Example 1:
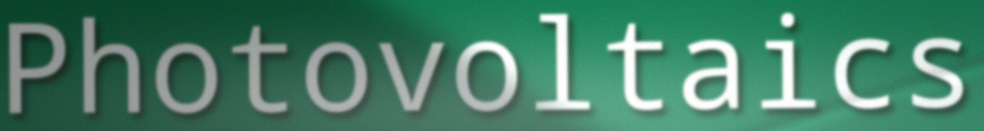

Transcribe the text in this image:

Photovoltaics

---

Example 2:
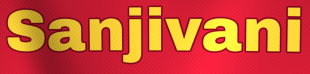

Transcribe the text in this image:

Sanjivani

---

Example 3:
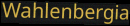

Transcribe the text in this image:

Wahlenbergia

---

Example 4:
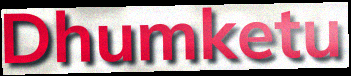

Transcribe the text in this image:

Dhumketu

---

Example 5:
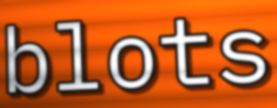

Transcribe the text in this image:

blots